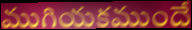
ముగియకముందే